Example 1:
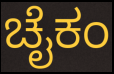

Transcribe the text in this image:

ಚೈಕಂ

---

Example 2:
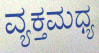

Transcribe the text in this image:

ವ್ಯಕ್ತಮಧ್ಯ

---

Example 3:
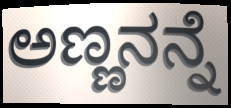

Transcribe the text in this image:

ಅಣ್ಣನನ್ನೆ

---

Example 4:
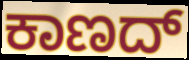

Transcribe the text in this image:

ಕಾಣದ್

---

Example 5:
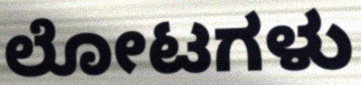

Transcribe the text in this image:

ಲೋಟಗಳು